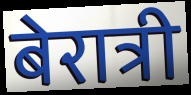
बेरात्री